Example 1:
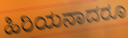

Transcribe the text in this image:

ಹಿರಿಯನಾದರೂ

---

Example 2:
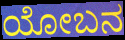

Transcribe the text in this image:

ಯೋಬನ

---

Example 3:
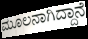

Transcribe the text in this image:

ಮೂಲನಾಗಿದ್ದಾನೆ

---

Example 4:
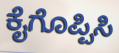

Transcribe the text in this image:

ಕೈಗೊಪ್ಪಿಸಿ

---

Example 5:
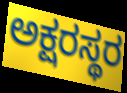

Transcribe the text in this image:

ಅಕ್ಷರಸ್ಥರ